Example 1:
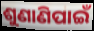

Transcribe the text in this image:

ଶୁଣାଣିପାଇଁ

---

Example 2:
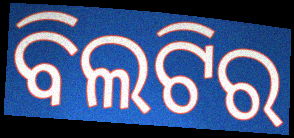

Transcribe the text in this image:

ବିଲଟିର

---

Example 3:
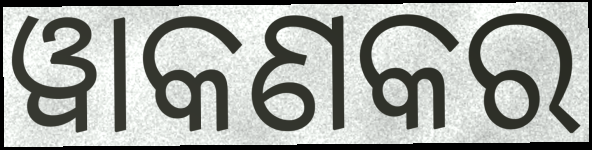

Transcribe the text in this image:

ୱାକଣକର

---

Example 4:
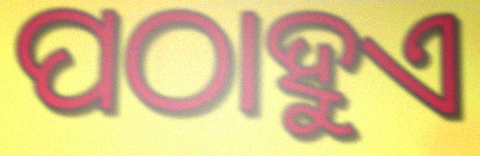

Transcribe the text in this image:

ପଠାହୁଏ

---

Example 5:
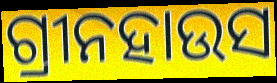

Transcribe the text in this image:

ଗ୍ରୀନହାଉସ